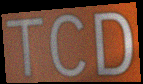
TCD